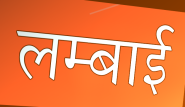
लम्बाई